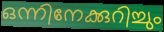
ഒന്നിനേക്കുറിച്ചും